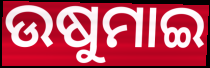
ଉଷୁମାଇ